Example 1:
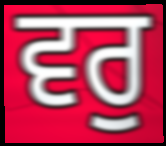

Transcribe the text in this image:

ਵਰੁ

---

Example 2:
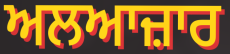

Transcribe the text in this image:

ਅਲਆਜ਼ਾਰ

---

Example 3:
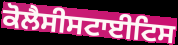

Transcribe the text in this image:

ਕੋਲੈਸੀਸਟਾਈਟਿਸ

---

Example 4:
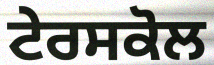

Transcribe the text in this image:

ਟੇਰਸਕੋਲ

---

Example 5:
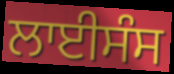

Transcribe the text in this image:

ਲਾਈਸੰਸ